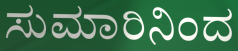
ಸುಮಾರಿನಿಂದ